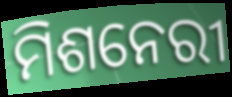
ମିଶନେରୀ